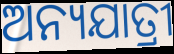
ଅନ୍ଯଯାତ୍ରୀ